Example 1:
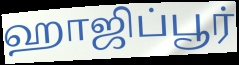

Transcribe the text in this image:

ஹாஜிப்பூர்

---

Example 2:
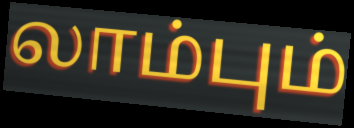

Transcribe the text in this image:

லாம்பும்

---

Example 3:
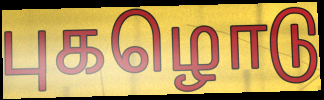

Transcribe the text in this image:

புகழொடு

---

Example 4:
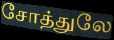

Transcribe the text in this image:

சோத்துலே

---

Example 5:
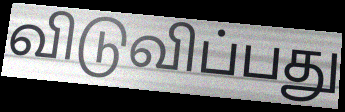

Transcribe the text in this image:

விடுவிப்பது